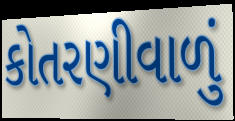
કોતરણીવાળું